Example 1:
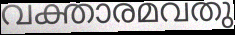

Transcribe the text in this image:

വക്താരമവതു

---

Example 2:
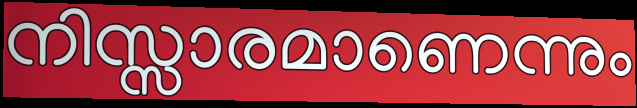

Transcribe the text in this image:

നിസ്സാരമാണെന്നും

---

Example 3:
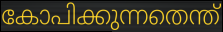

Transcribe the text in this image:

കോപിക്കുന്നതെന്ത്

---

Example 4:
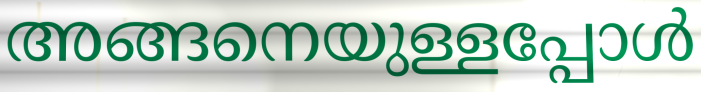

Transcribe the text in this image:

അങ്ങനെയുള്ളപ്പോൾ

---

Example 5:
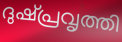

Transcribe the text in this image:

ദുഷ്പ്രവൃത്തി